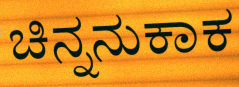
ಚಿನ್ನನುಕಾಕ